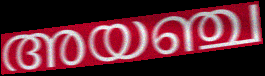
അയഞ്ച